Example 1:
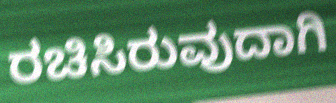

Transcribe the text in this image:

ರಚಿಸಿರುವುದಾಗಿ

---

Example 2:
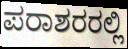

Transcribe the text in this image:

ಪರಾಶರರಲ್ಲಿ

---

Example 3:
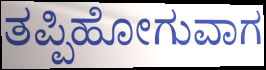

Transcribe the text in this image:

ತಪ್ಪಿಹೋಗುವಾಗ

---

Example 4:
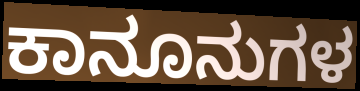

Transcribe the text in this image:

ಕಾನೂನುಗಳ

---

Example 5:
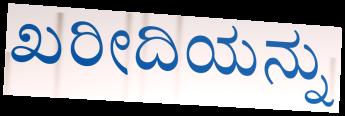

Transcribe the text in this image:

ಖರೀದಿಯನ್ನು